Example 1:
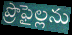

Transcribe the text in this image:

ప్రొఫైల్లను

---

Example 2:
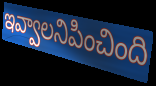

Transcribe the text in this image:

ఇవ్వాలనిపించింది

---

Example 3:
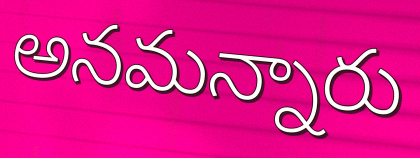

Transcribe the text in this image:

అనమన్నారు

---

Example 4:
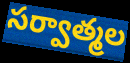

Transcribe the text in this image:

సర్వాత్మల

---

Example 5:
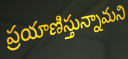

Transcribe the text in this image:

ప్రయాణిస్తున్నామని